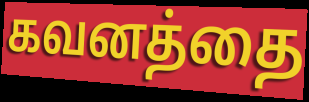
கவனத்தை